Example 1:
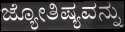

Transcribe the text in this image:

ಜ್ಯೋತಿಷ್ಯವನ್ನು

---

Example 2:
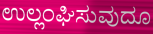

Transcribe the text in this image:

ಉಲ್ಲಂಘಿಸುವುದೂ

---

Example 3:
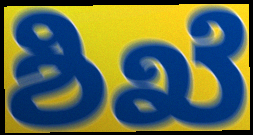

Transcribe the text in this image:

ಶಿಖೆ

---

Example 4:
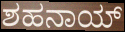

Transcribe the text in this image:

ಶಹನಾಯ್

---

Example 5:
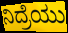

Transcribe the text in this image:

ನಿದ್ರೆಯು